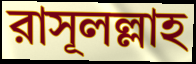
রাসূলল্লাহ